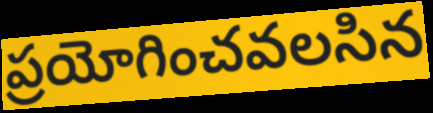
ప్రయోగించవలసిన